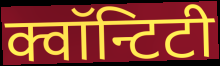
क्वॉन्टिटी